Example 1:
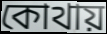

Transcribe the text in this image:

কোথায়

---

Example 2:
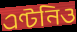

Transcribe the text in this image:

এণ্টনিও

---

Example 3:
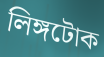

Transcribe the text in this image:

লিঙ্গটোক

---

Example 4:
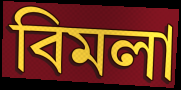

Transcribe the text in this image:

বিমলা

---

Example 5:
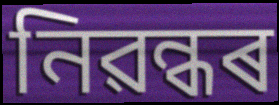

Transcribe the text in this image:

নিৱন্ধৰ